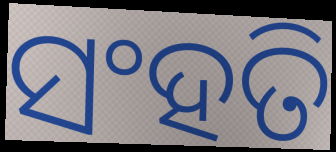
ସଂହତି